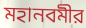
মহানবমীর